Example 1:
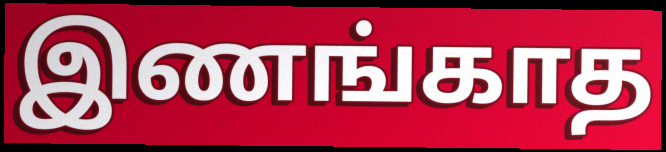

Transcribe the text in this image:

இணங்காத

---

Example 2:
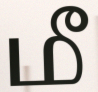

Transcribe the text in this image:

மீ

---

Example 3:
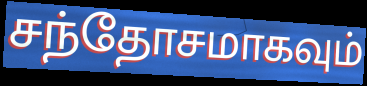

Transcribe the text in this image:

சந்தோசமாகவும்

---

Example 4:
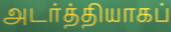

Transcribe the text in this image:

அடர்த்தியாகப்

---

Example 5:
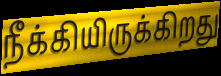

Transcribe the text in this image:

நீக்கியிருக்கிறது